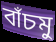
বাঁচমু